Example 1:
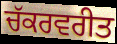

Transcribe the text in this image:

ਚੱਕਰਵਰੀਤ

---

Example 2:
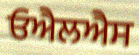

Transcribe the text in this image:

ਓਐਲਐਸ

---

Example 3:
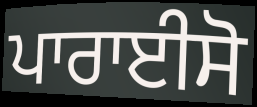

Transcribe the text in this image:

ਪਾਰਾਈਸੋ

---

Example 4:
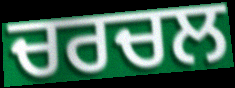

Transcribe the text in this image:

ਚਰਚਲ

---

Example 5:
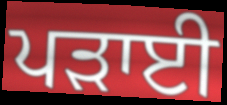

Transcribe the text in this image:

ਪੜਾਈ